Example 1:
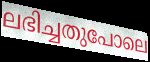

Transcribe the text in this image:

ലഭിച്ചതുപോലെ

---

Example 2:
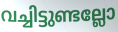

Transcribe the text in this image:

വച്ചിട്ടുണ്ടല്ലോ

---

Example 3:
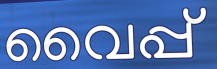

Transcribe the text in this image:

വൈപ്പ്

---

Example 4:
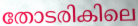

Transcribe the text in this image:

തോടരികിലെ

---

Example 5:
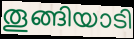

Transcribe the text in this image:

തൂങ്ങിയാടി